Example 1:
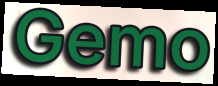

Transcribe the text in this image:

Gemo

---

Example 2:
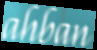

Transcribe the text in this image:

ahban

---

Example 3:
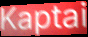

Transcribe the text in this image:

Kaptai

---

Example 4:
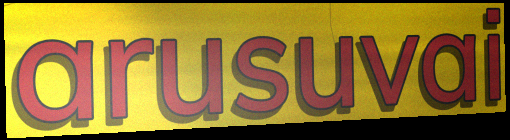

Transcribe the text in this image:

arusuvai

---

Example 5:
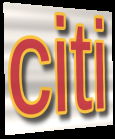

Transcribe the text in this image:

citi